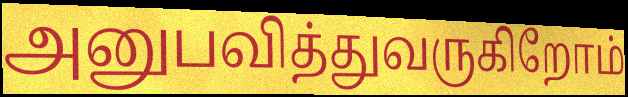
அனுபவித்துவருகிறோம்